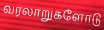
வரலாறுகளோடு